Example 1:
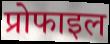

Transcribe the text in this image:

प्रोफाइल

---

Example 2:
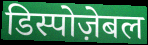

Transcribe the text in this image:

डिस्पोज़ेबल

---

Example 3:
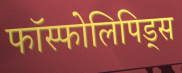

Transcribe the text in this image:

फॉस्फोलिपिड्स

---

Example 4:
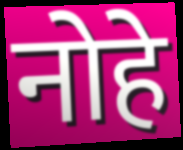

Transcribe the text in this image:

नोहे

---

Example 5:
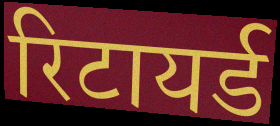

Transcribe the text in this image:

रिटायर्ड